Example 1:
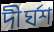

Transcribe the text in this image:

দীর্ঘশ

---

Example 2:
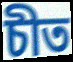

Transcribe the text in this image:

চীত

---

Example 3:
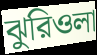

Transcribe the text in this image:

ঝুরিওলা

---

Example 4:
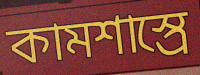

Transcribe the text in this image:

কামশাস্ত্রে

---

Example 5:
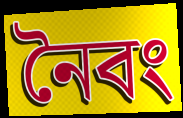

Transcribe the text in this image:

নৈবং